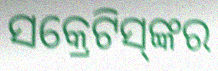
ସକ୍ରେଟିସ୍‌ଙ୍କର